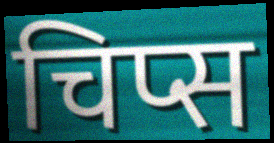
चिप्स